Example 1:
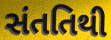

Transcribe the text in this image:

સંતતિથી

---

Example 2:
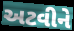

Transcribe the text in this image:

અટવીને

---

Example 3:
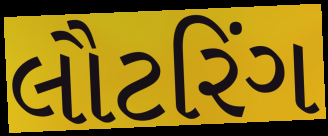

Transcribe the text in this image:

લૌટરિંગ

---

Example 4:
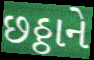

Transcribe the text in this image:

છઠ્ઠાને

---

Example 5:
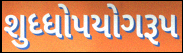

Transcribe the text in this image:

શુધ્ધોપયોગરૂપ